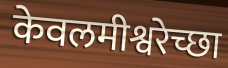
केवलमीश्वरेच्छा